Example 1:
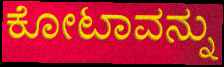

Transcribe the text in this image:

ಕೋಟಾವನ್ನು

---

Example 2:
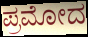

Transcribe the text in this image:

ಪ್ರಮೋದ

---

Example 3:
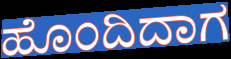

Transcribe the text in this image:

ಹೊಂದಿದಾಗ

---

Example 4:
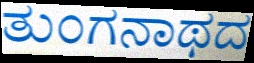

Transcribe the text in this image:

ತುಂಗನಾಥದ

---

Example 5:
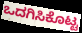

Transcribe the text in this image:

ಒದಗಿಸಿಕೊಟ್ಟ